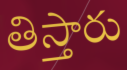
తిస్తారు